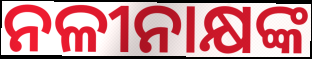
ନଳୀନାକ୍ଷଙ୍କ